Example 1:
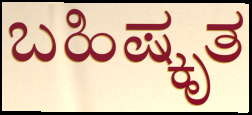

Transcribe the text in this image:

ಬಹಿಷ್ಕೃತ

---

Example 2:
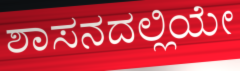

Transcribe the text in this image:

ಶಾಸನದಲ್ಲಿಯೇ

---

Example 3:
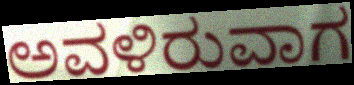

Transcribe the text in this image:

ಅವಳಿರುವಾಗ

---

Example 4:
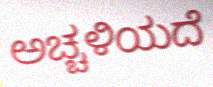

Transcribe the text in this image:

ಅಚ್ಚಳಿಯದೆ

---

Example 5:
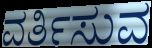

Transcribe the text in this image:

ವರ್ತಿಸುವ